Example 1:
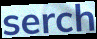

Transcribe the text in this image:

serch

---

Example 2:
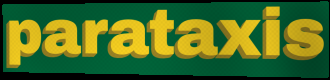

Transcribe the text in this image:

parataxis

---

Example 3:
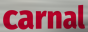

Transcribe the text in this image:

carnal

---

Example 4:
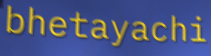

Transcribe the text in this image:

bhetayachi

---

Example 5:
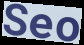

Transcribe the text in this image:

Seo